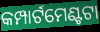
କମ୍ପାର୍ଟମେଣ୍ଟଟା